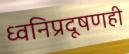
ध्वनिप्रदूषणही